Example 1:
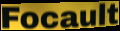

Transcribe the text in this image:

Focault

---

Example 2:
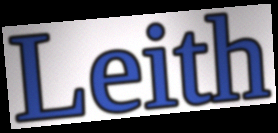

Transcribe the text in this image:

Leith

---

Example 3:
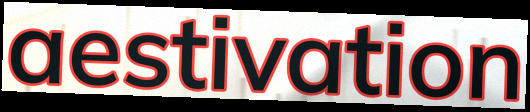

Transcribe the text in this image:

aestivation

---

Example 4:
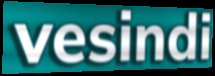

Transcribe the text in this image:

vesindi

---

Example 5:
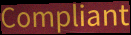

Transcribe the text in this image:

Compliant